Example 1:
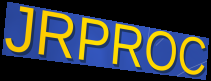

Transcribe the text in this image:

JRPROC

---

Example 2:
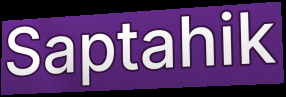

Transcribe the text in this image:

Saptahik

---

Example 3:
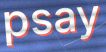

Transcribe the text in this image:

psay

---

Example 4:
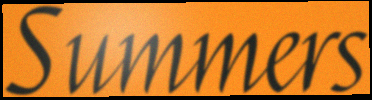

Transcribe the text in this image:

Summers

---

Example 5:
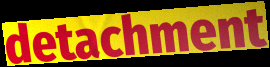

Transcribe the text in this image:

detachment